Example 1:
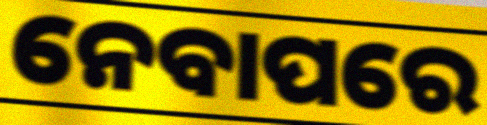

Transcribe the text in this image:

ନେବାପରେ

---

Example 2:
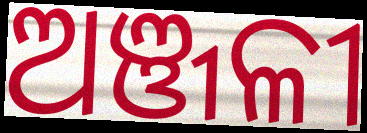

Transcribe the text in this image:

ଅଞ୍ଜଳୀ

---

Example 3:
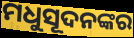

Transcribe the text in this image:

ମଧୁସୂଦନଙ୍କର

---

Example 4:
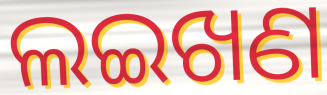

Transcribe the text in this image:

ଲଇଖଣ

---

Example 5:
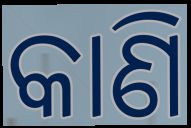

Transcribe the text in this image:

କାଣି